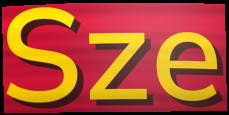
Sze